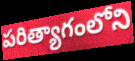
పరిత్యాగంలోని